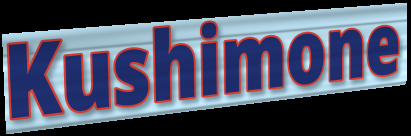
Kushimone